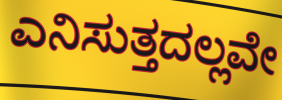
ಎನಿಸುತ್ತದಲ್ಲವೇ